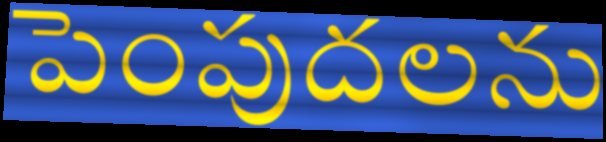
పెంపుదలను